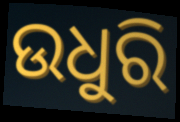
ଉଧୁରି